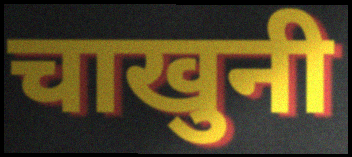
चाखुनी